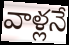
వాళ్లనే